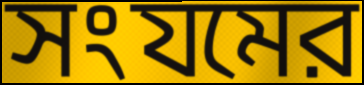
সংযমের